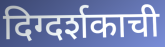
दिग्दर्शकाची